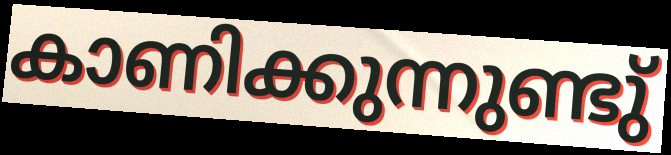
കാണിക്കുന്നുണ്ടു്